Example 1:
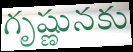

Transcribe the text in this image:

గృష్ణునకు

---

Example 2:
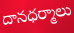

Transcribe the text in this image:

దానధర్మాలు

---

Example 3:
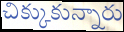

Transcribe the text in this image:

చిక్కుకున్నారు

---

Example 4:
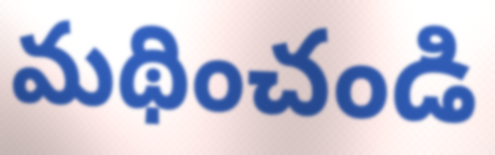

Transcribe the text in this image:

మథించండి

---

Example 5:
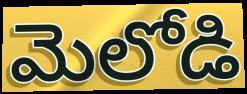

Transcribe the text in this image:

మెలోడి